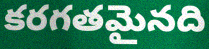
కరగతమైనది